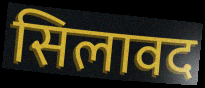
सिलावद